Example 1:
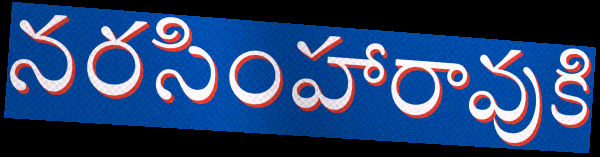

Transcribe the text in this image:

నరసింహారావుకి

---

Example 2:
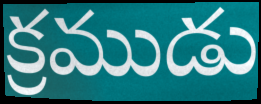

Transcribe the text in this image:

క్రముడు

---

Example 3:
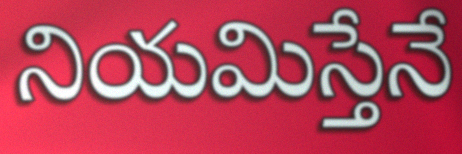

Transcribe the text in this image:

నియమిస్తేనే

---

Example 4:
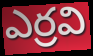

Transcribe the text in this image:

ఎర్రవి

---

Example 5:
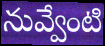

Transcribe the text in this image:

నువ్వేంటి